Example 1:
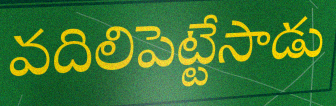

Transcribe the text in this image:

వదిలిపెట్టేసాడు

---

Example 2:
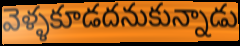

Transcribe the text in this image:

వెళ్ళకూడదనుకున్నాడు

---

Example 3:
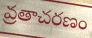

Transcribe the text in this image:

వ్రతాచరణం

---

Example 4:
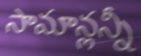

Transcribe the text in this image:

సామాన్లన్నీ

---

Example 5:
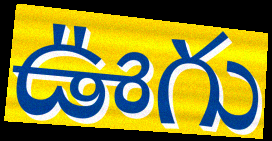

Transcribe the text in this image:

ఊగు